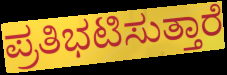
ಪ್ರತಿಭಟಿಸುತ್ತಾರೆ